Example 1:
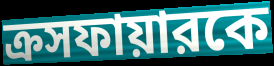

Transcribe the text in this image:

ক্রসফায়ারকে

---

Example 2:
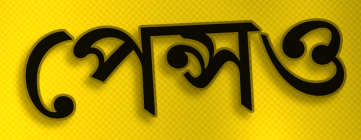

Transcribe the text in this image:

পেন্সও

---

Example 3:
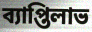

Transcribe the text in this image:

ব্যাপ্তিলাভ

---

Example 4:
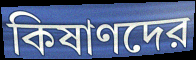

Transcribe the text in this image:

কিষাণদের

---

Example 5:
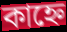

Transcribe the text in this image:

কাহ্নে